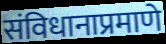
संविधानाप्रमाणे